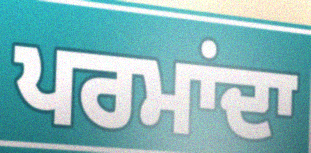
ਪਰਮਾਂਦਾ